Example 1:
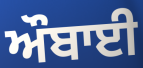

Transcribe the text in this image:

ਔਬਾਈ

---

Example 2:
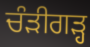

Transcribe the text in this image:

ਚੰੜੀਗੜ੍ਹ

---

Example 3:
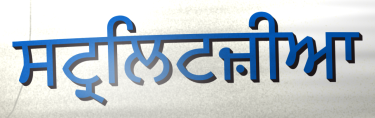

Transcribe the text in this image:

ਸਟ੍ਰਲਿਟਜ਼ੀਆ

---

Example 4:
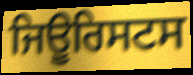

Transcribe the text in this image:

ਜਿਊਰਿਸਟਸ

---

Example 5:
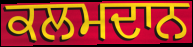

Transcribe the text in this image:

ਕਲਮਦਾਨ